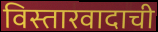
विस्तारवादाची